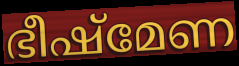
ഭീഷ്മേണ